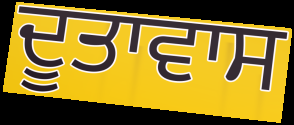
ਦੂਤਾਵਾਸ